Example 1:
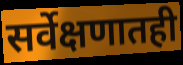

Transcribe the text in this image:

सर्वेक्षणातही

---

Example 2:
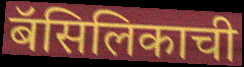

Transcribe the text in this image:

बॅसिलिकाची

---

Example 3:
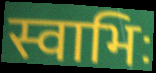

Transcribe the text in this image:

स्वाभिः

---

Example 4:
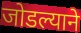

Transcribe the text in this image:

जोडल्याने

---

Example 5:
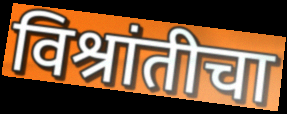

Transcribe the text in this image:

विश्रांतीचा